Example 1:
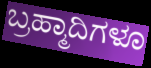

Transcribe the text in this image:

ಬ್ರಹ್ಮಾದಿಗಳೂ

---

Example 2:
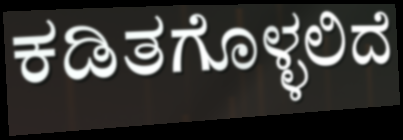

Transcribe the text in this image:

ಕಡಿತಗೊಳ್ಳಲಿದೆ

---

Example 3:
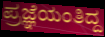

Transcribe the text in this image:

ಪ್ರಜ್ಞೆಯಂತಿದ್ದ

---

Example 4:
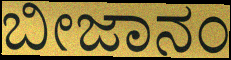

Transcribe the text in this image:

ಬೀಜಾನಂ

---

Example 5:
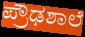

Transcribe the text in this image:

ಪ್ರೌಢಶಾಲೆ